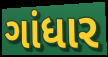
ગાંધાર